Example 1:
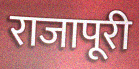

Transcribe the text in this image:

राजापूरी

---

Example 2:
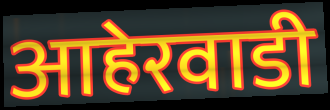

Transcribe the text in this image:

आहेरवाडी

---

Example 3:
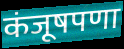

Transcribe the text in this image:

कंजूषपणा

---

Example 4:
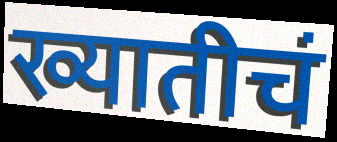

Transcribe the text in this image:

ख्यातीचं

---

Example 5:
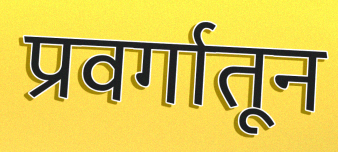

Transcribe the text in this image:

प्रवर्गातून